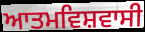
ਆਤਮਵਿਸ਼ਵਾਸੀ